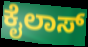
ಕೈಲಾಸ್